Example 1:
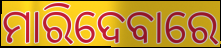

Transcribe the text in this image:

ମାରିଦେବାରେ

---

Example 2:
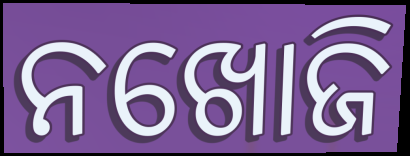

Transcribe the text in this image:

ନଖୋଜି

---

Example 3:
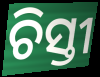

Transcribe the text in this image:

ଚିସ୍ତୀ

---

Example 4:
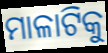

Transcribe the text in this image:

ମାଳାଟିକୁ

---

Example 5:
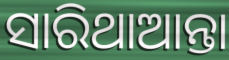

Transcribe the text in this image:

ସାରିଥାଆନ୍ତା